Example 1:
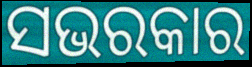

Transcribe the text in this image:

ସଭରକାର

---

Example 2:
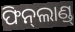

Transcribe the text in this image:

ଫିନ୍‌ଲାଣ୍ଡ୍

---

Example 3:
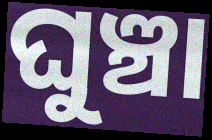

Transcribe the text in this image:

ଘୁଞ୍ଚା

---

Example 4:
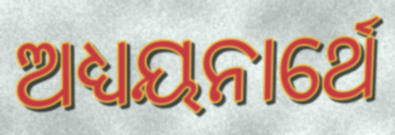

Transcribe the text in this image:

ଅଧ୍ୟୟନାର୍ଥେ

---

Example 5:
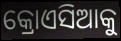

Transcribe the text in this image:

କ୍ରୋଏସିଆକୁ